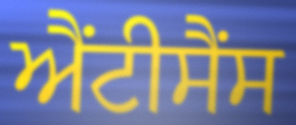
ਐਂਟੀਸੈਂਸ